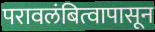
परावलंबित्वापासून